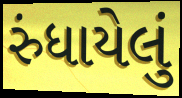
રુંધાયેલું